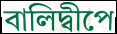
বালিদ্বীপে